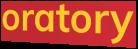
oratory